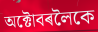
অক্টোবৰলৈকে